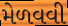
મેળવવી